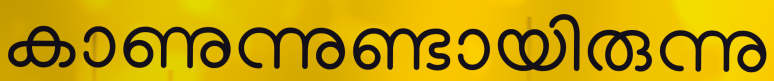
കാണുന്നുണ്ടായിരുന്നു